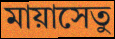
মায়াসেতু